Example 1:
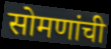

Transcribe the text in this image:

सोमणांची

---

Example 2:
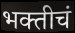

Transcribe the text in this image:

भक्तीचं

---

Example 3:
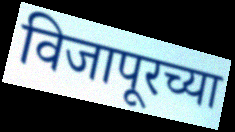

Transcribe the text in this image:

विजापूरच्या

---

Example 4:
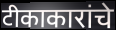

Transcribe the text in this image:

टीकाकारांचे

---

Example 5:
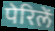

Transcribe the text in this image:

पेरिलें